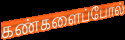
கண்களைப்போல்